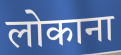
लोकाना